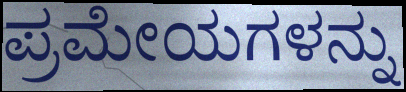
ಪ್ರಮೇಯಗಳನ್ನು